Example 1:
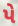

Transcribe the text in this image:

પે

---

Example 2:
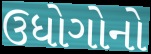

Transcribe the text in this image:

ઉધોગોનો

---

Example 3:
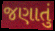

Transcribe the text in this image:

જણાતું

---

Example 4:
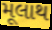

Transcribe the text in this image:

મૂલાથ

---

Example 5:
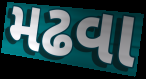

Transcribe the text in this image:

મઢવા